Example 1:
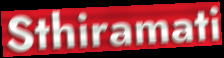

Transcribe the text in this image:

Sthiramati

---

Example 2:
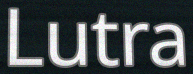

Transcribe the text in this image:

Lutra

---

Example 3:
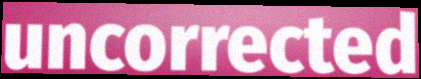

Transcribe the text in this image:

uncorrected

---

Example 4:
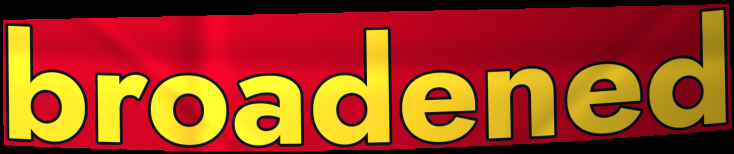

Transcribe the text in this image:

broadened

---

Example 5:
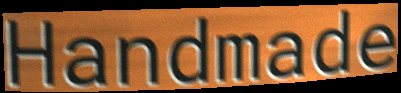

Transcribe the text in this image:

Handmade